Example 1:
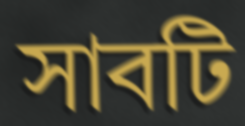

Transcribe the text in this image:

সাবটি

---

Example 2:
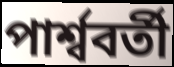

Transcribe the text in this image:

পাৰ্শ্ববৰ্তী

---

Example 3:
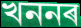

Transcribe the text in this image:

খননৰ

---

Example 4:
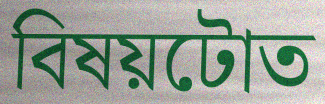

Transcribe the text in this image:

বিষয়টোত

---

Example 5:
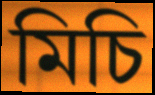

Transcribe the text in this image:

মিচি